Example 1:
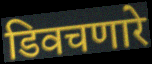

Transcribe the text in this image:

डिवचणारे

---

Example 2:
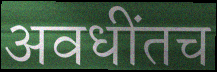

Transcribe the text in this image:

अवधींतच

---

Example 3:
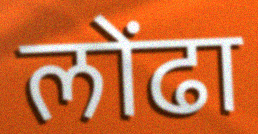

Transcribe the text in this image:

लोंढा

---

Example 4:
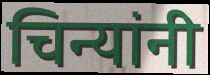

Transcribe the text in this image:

चिन्यांनी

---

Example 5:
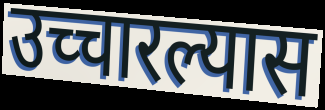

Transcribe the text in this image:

उच्चारल्यास